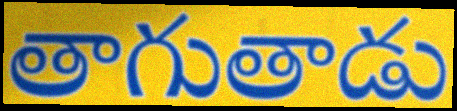
తాగుతాడు